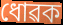
ধোৱক